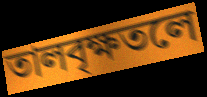
তালবৃক্ষতলে